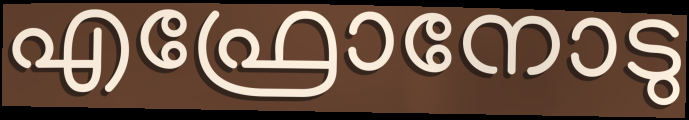
എഫ്രോനോടു